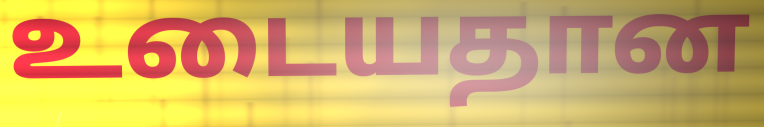
உடையதான